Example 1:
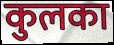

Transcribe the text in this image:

कुलका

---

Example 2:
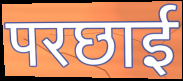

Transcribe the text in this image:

परछाई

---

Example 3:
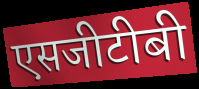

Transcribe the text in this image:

एसजीटीबी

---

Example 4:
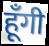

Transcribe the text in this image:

हूँगी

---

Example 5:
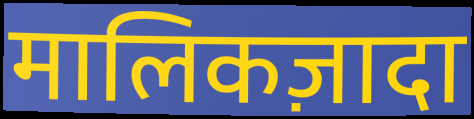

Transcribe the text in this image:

मालिकज़ादा